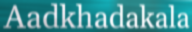
Aadkhadakala